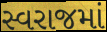
સ્વરાજમાં